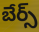
బేర్స్